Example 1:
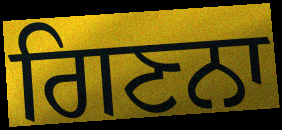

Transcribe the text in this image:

ਗਿਣਨਾ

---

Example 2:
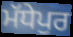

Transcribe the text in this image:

ਮੱਧੇਪੁਰ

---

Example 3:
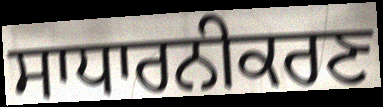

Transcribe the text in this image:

ਸਾਧਾਰਨੀਕਰਣ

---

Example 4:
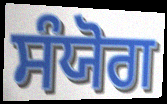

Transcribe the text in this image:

ਸੰਯੋਗ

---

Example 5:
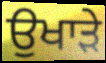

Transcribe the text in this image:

ਉਖਾੜੇ